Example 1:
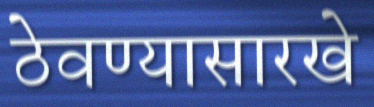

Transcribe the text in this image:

ठेवण्यासारखे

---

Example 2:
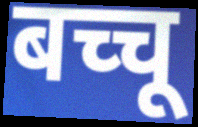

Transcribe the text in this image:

बच्चू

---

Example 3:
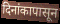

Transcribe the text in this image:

दिनांकापासून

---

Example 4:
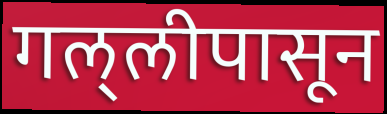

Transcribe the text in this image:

गल्लीपासून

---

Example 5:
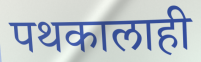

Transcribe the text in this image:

पथकालाही